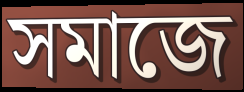
সমাজে